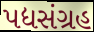
પદ્યસંગ્રહ